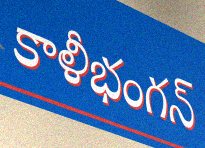
కాళీభంగన్